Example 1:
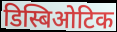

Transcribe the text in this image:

डिस्बिओटिक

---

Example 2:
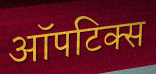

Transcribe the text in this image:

ऑपटिक्स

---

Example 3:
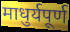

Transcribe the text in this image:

माधुर्यपूर्ण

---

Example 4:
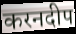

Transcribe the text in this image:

करनदीप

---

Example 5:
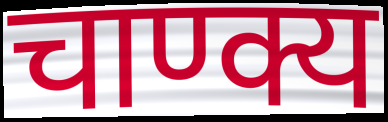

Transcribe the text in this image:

चाण्क्य